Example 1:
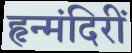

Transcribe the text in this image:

हृन्मंदिरीं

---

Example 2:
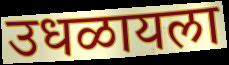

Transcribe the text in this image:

उधळायला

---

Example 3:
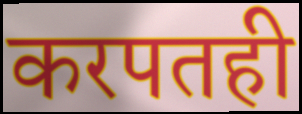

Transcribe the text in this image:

करपतही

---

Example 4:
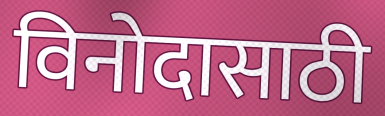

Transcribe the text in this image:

विनोदासाठी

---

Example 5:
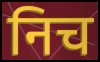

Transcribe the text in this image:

निच